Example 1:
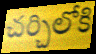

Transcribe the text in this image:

చర్చిలోకి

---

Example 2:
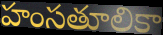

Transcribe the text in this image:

హంసతూలికా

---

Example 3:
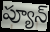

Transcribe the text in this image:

ప్యూన్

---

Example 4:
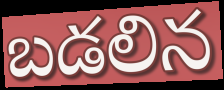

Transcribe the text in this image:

బడలిన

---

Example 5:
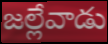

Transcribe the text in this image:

జల్లేవాడు